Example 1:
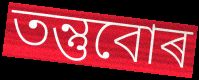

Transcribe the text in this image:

তন্তুবোৰ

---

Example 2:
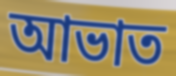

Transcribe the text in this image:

আভাত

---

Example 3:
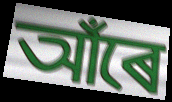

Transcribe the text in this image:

আঁৰে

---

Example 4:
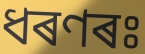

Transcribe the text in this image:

ধৰণৰঃ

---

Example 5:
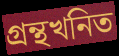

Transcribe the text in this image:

গ্ৰন্থখনিত